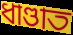
ধাণ্ডাত